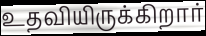
உதவியிருக்கிறார்